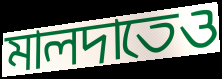
মালদাতেও